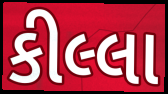
કીલ્લા